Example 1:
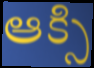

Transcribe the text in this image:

ఆక్సి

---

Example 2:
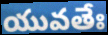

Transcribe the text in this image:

యువతేః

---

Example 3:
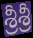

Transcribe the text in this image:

శ్రీశ్రీ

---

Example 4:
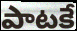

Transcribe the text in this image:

పాటకే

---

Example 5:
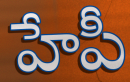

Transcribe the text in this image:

హేపీ